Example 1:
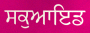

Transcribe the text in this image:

ਸਕੁਆਇਡ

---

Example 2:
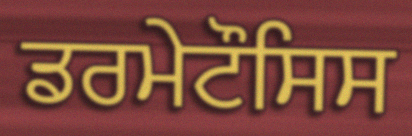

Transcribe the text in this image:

ਡਰਮੇਟੌਸਿਸ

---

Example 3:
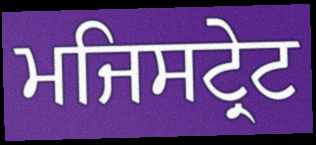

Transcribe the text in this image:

ਮਜਿਸਟ੍ਰੇਟ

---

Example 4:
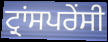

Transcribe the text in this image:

ਟ੍ਰਾਂਸਪਰੇਂਸੀ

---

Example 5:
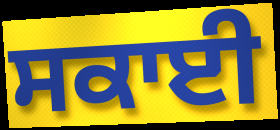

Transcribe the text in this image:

ਸਕਾਈ